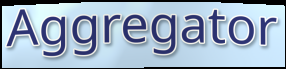
Aggregator